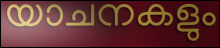
യാചനകളും